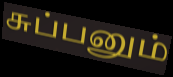
சுப்பனும்